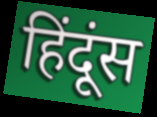
हिंदूंस